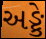
અઙ્કે